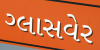
ગ્લાસવેર